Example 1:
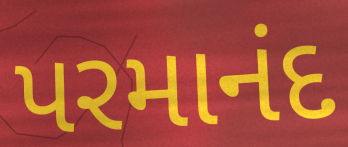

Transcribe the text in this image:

પરમાનંદ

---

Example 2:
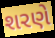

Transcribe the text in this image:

શરણે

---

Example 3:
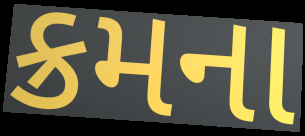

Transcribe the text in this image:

ક્રમના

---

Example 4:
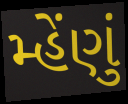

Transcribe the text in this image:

મ્હેંણું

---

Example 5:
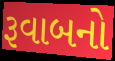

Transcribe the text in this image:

રૂવાબનો